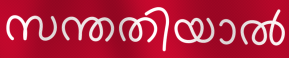
സന്തതിയാൽ